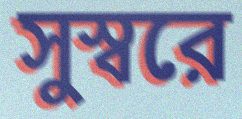
সুস্বরে